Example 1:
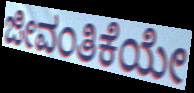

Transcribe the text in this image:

ಜೀವಂತಿಕೆಯೇ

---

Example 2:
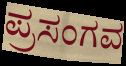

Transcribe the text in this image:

ಪ್ರಸಂಗವ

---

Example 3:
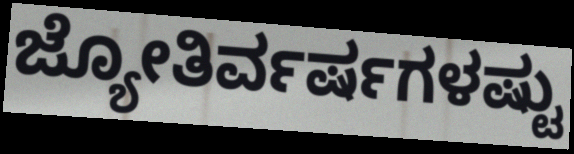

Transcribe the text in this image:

ಜ್ಯೋತಿರ್ವರ್ಷಗಳಷ್ಟು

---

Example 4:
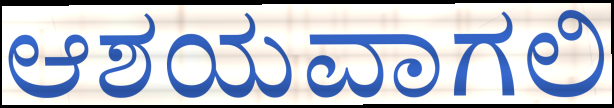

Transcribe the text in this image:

ಆಶಯವಾಗಲಿ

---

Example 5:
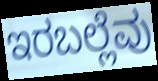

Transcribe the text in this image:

ಇರಬಲ್ಲೆವು